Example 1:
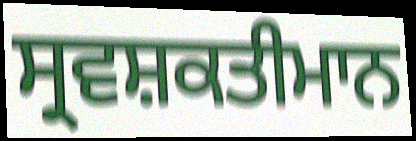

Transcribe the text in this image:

ਸ੍ਰਵਸ਼ਕਤੀਮਾਨ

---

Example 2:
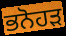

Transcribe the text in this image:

ਭਨੋਹੜ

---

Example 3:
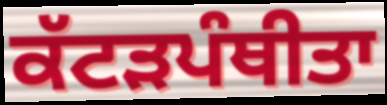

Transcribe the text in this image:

ਕੱਟੜਪੰਥੀਤਾ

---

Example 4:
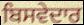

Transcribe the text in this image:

ਬਿਸਵੇਦਾਰ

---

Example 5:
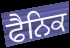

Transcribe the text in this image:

ਫੈਨਿਕ